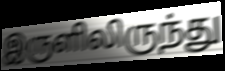
இருளிலிருந்து